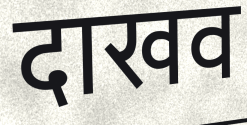
दाखव